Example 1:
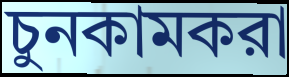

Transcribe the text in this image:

চুনকামকরা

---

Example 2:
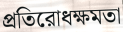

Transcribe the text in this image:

প্রতিরোধক্ষমতা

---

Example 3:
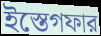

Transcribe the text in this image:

ইস্তেগফার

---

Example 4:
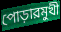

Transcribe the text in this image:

পোড়ারমুখী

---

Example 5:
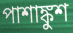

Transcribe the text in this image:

পাশাঙ্কুশ